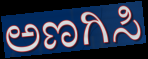
ಅಣಗಿಸಿ